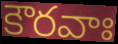
కౌరవాః